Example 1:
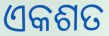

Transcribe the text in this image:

ଏକଶତ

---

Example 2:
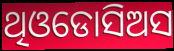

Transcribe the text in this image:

ଥିଓଡୋସିଅସ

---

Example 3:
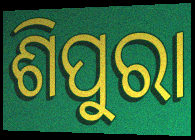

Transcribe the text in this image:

ଶିପୁରା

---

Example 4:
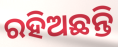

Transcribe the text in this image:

ରହିଅଛନ୍ତି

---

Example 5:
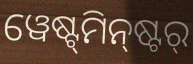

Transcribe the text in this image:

ୱେଷ୍ଟ୍‌ମିନ୍‌ଷ୍ଟର୍